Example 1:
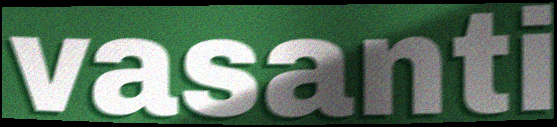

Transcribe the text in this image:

vasanti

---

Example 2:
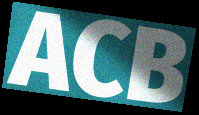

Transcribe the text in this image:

ACB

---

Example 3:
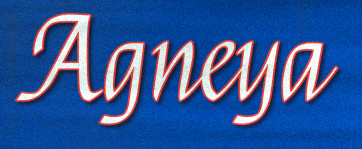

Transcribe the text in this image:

Agneya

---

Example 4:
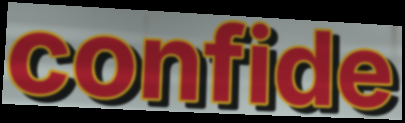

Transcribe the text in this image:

confide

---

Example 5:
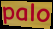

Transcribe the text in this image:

palo